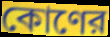
কোণের